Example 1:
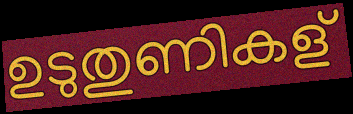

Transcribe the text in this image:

ഉടുതുണികള്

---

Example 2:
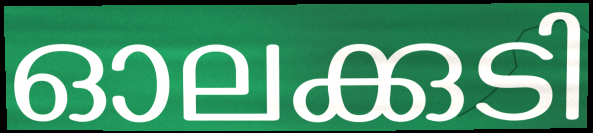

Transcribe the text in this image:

ഓലക്കുടി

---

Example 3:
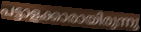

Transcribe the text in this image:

പട്ടാളക്കാരായിരുന്നു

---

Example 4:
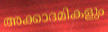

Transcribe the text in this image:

അക്കാദമികളും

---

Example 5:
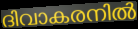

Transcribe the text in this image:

ദിവാകരനിൽ